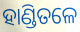
ହାଣ୍ଡିତଳେ